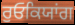
ਰੁਓਕਿਯਾਂਗ